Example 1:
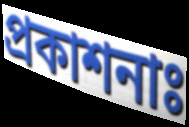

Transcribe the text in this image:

প্রকাশনাঃ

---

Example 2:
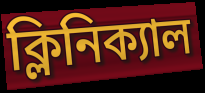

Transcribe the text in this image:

ক্লিনিক্যাল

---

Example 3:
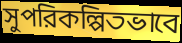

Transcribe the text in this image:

সুপরিকল্পিতভাবে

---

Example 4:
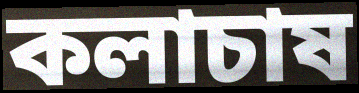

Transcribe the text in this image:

কলাচাষ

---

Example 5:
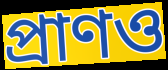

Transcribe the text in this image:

প্রাণও